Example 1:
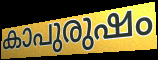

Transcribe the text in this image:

കാപുരുഷം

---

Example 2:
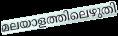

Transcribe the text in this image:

മലയാളത്തിലെഴുതി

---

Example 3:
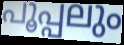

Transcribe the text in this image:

പൂപ്പലും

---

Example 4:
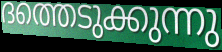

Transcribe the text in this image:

ദത്തെടുക്കുന്നു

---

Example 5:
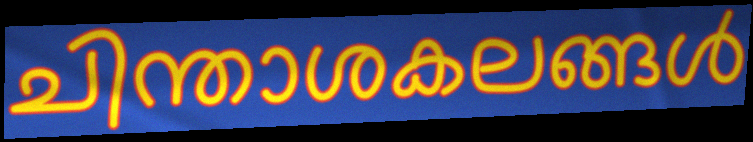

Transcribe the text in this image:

ചിന്താശകലങ്ങൾ